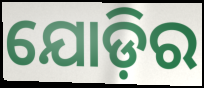
ଯୋଡ଼ିର